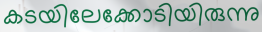
കടയിലേക്കോടിയിരുന്നു